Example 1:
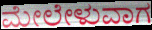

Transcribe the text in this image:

ಮೇಲೇಳುವಾಗ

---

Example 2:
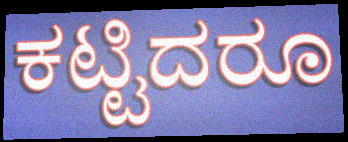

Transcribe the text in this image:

ಕಟ್ಟಿದರೂ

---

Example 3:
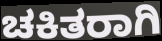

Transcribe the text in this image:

ಚಕಿತರಾಗಿ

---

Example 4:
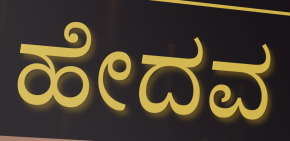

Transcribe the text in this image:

ಹೇದವ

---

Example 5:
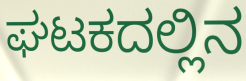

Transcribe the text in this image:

ಘಟಕದಲ್ಲಿನ